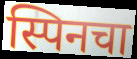
स्पिनचा